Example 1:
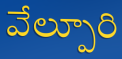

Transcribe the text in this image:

వేల్పూరి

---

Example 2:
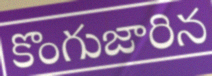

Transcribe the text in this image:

కొంగుజారిన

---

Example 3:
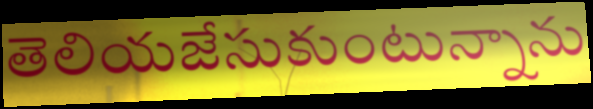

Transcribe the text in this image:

తెలియజేసుకుంటున్నాను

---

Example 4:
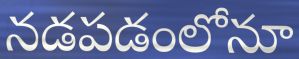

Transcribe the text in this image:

నడపడంలోనూ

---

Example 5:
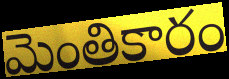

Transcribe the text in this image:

మెంతికారం